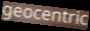
geocentric